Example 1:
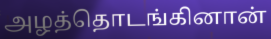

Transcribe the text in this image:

அழத்தொடங்கினான்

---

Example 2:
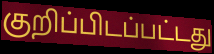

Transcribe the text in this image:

குறிப்பிடப்பட்டது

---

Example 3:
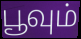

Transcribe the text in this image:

பூவும்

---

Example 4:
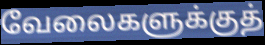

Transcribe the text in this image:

வேலைகளுக்குத்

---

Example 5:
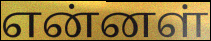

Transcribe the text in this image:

என்னள்